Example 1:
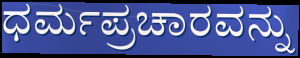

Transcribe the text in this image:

ಧರ್ಮಪ್ರಚಾರವನ್ನು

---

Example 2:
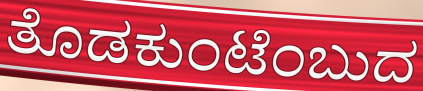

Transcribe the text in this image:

ತೊಡಕುಂಟೆಂಬುದ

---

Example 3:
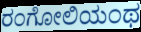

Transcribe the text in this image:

ರಂಗೋಲಿಯಂಥ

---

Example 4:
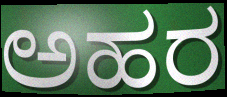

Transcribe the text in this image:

ಅಹರ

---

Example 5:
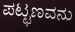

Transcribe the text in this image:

ಪಟ್ಟಣವನು